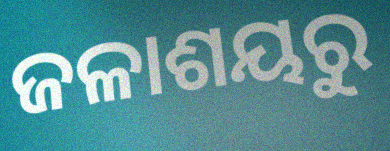
ଜଳାଶୟରୁ